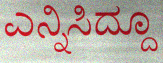
ಎನ್ನಿಸಿದ್ದೂ